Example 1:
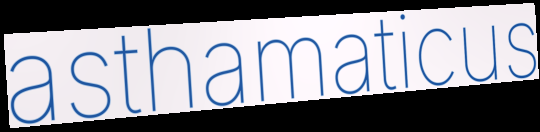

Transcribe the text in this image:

asthamaticus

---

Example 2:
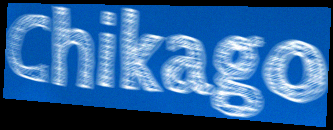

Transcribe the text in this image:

Chikago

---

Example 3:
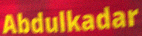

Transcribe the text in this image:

Abdulkadar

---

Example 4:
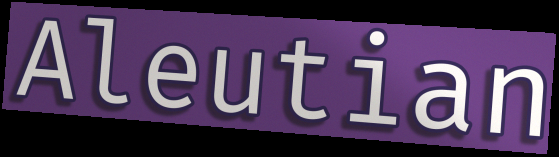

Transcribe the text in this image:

Aleutian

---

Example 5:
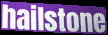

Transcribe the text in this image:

hailstone